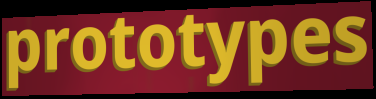
prototypes